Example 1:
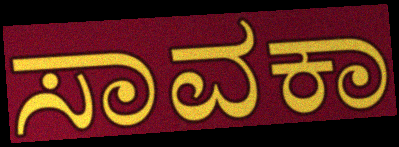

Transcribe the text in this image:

ಸಾವಕಾ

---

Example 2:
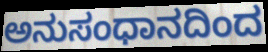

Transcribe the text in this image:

ಅನುಸಂಧಾನದಿಂದ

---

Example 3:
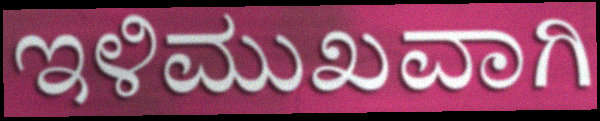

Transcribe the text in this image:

ಇಳಿಮುಖವಾಗಿ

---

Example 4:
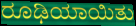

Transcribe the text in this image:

ರೂಢಿಯಾಯಿತು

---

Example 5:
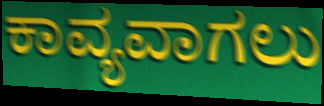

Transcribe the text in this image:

ಕಾವ್ಯವಾಗಲು